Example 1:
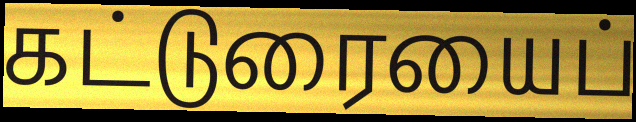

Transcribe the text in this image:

கட்டுரையைப்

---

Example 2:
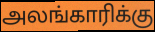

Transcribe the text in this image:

அலங்காரிக்கு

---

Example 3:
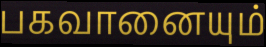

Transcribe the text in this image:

பகவானையும்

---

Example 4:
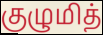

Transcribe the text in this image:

குழுமித்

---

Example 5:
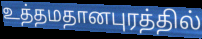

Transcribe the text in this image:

உத்தமதானபுரத்தில்